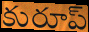
కురూప్